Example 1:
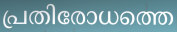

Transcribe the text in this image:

പ്രതിരോധത്തെ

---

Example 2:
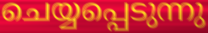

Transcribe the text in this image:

ചെയ്യപ്പെടുന്നു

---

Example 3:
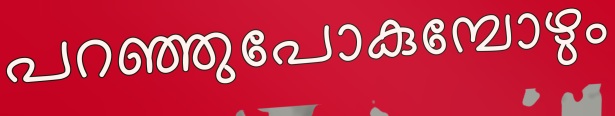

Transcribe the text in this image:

പറഞ്ഞുപോകുമ്പോഴും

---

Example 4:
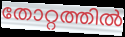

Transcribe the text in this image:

തോറ്റത്തിൽ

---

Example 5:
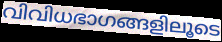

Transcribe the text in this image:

വിവിധഭാഗങ്ങളിലൂടെ